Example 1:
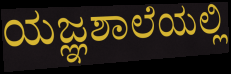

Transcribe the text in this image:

ಯಜ್ಞಶಾಲೆಯಲ್ಲಿ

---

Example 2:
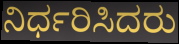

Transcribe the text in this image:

ನಿರ್ಧರಿಸಿದರು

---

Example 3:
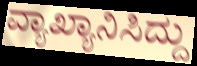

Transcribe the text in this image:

ವ್ಯಾಖ್ಯಾನಿಸಿದ್ದು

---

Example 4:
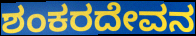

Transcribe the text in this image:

ಶಂಕರದೇವನ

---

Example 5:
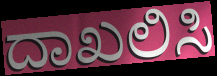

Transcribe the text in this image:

ದಾಖಲಿಸಿ